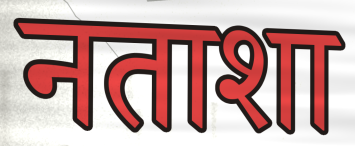
नताशा